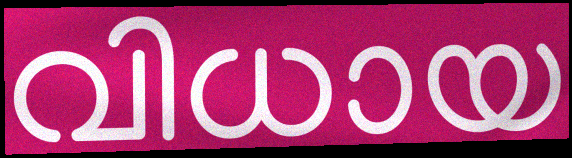
വിധായ